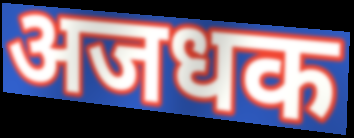
अजधक